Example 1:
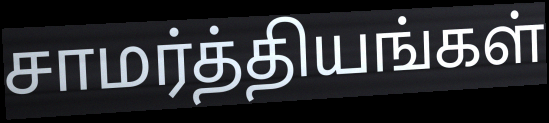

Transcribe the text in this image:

சாமர்த்தியங்கள்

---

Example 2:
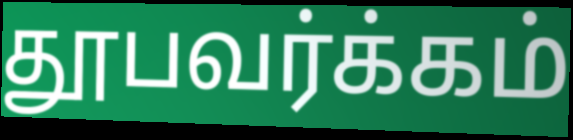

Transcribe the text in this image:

தூபவர்க்கம்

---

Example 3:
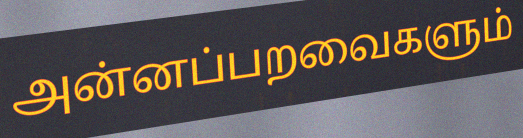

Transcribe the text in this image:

அன்னப்பறவைகளும்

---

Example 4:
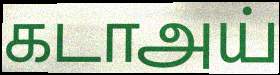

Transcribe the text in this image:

கடாஅய்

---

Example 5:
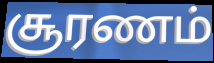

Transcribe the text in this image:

சூரணம்